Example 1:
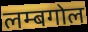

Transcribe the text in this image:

लम्बगोल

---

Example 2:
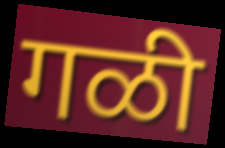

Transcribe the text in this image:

गळी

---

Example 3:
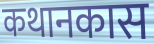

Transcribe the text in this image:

कथानकास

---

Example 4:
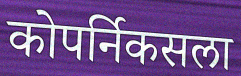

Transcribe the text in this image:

कोपर्निकसला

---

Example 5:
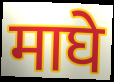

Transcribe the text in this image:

माघे